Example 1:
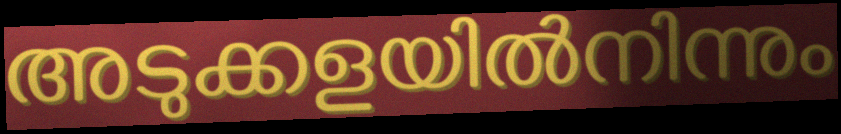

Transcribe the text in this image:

അടുക്കളയിൽനിന്നും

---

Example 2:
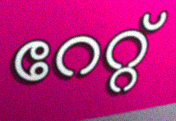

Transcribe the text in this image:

റേറ്റ്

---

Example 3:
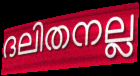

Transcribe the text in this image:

ദലിതനല്ല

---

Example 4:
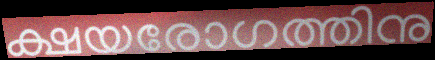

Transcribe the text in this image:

ക്ഷയരോഗത്തിനു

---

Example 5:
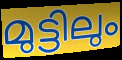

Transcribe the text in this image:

മുട്ടിലും